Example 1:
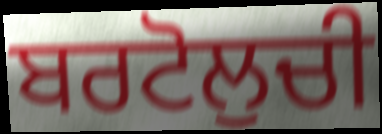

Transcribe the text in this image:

ਬਰਟੋਲੁਚੀ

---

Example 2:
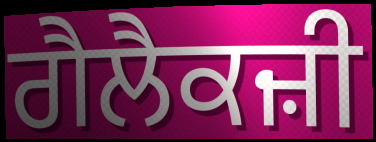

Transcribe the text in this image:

ਗੈਲੈਕਜ਼ੀ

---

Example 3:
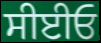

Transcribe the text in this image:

ਸੀਈਓ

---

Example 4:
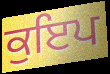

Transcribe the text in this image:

ਕੁਇਪ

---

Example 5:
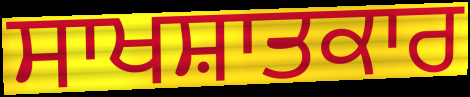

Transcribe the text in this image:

ਸਾਖਸ਼ਾਤਕਾਰ